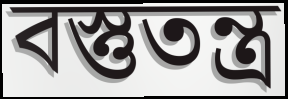
বস্তুতন্ত্র